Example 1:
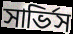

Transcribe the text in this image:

সার্ভিস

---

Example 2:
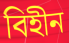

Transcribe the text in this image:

বিহীন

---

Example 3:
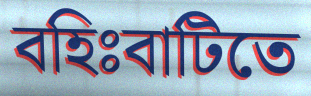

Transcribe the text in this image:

বহিঃবাটিতে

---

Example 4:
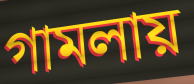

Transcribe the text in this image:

গামলায়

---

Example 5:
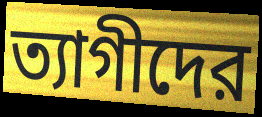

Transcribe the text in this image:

ত্যাগীদের